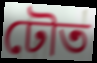
ঢৌত